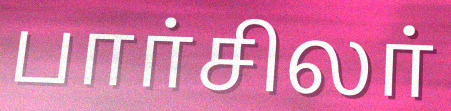
பார்சிலர்